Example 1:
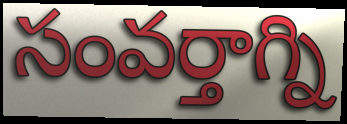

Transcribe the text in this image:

సంవర్తాగ్ని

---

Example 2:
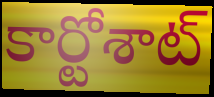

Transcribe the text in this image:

కార్టోశాట్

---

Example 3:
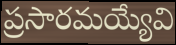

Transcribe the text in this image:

ప్రసారమయ్యేవి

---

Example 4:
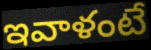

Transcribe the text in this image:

ఇవాళంటే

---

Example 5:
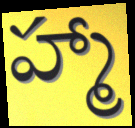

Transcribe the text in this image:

హ్మా